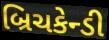
બ્રિચકેન્ડી